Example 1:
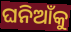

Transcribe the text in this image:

ଘନିଆଁକୁ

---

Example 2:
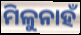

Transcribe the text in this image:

ମିଳୁନାହଁ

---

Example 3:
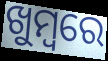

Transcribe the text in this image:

ଖୁମ୍ବରେ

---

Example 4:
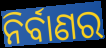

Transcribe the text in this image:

ନିର୍ବାଣର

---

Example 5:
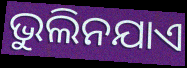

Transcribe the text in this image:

ଭୁଲିନଯାଏ